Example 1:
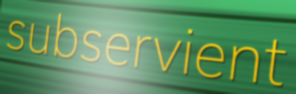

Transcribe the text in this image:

subservient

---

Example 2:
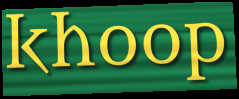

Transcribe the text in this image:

khoop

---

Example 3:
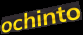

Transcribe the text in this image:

ochinto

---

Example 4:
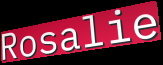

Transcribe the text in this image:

Rosalie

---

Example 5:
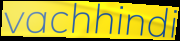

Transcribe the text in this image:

vachhindi